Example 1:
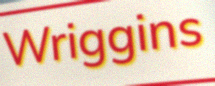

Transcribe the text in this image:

Wriggins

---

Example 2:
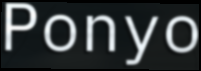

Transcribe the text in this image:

Ponyo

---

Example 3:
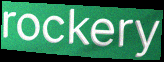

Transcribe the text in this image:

rockery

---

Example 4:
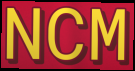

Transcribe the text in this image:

NCM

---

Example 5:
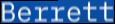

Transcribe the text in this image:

Berrett